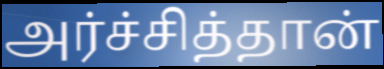
அர்ச்சித்தான்